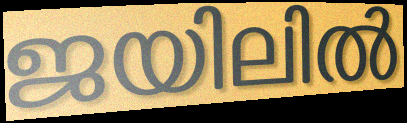
ജയിലിൽ